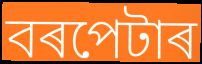
বৰপেটাৰ